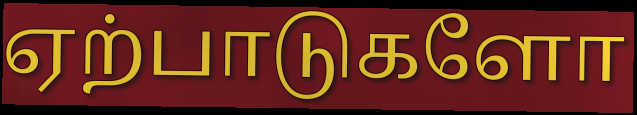
ஏற்பாடுகளோ